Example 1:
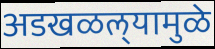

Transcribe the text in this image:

अडखळल्यामुळे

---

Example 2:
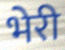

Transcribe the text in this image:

भेरी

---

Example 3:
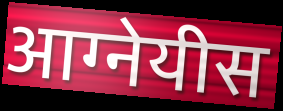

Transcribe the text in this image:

आग्नेयीस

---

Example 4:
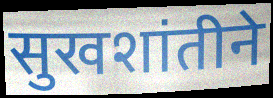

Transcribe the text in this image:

सुखशांतीने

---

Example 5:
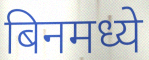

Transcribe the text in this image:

बिनमध्ये